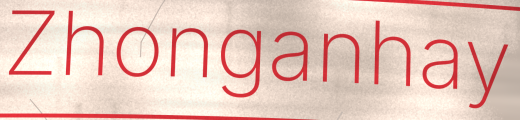
Zhonganhay